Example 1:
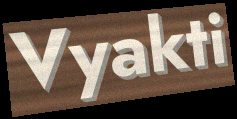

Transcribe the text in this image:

Vyakti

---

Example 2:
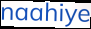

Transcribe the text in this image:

naahiye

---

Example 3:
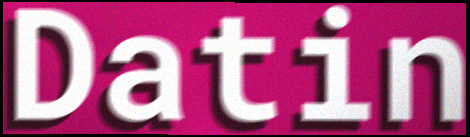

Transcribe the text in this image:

Datin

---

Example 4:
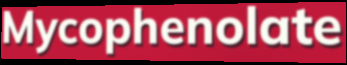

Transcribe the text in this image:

Mycophenolate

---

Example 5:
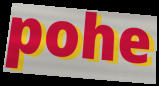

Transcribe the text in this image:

pohe